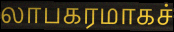
லாபகரமாகச்